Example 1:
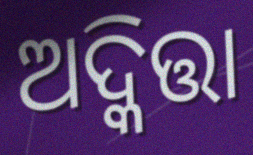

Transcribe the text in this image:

ଅଦ୍କିତ୍ତା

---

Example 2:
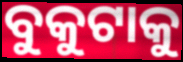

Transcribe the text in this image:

ବୁକୁଟାକୁ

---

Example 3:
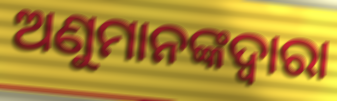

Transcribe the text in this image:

ଅଣୁମାନଙ୍କଦ୍ଵାରା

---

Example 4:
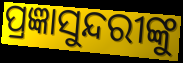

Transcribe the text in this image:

ପ୍ରଜ୍ଞାସୁନ୍ଦରୀଙ୍କୁ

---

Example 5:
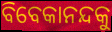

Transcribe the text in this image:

ବିବେକାନନ୍ଦକୁ